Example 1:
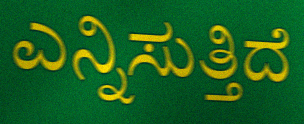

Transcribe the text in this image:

ಎನ್ನಿಸುತ್ತಿದೆ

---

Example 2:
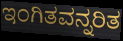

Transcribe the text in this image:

ಇಂಗಿತವನ್ನರಿತ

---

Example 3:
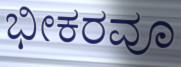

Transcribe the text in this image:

ಭೀಕರವೂ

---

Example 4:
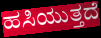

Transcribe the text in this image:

ಹಸಿಯುತ್ತದೆ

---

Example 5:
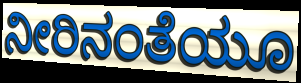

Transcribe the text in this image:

ನೀರಿನಂತೆಯೂ